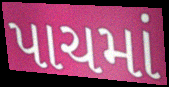
પાચમાં